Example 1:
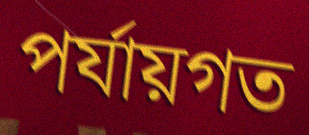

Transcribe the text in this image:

পর্যায়গত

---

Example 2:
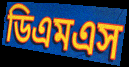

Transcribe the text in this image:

ডিএমএস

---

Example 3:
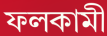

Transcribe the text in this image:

ফলকামী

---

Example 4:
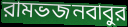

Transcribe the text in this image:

রামভজনবাবুর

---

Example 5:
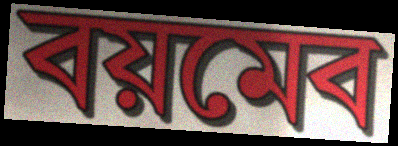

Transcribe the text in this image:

বয়মেব